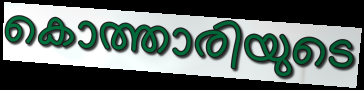
കൊത്താരിയുടെ